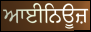
ਆਈਨਿਊਜ਼